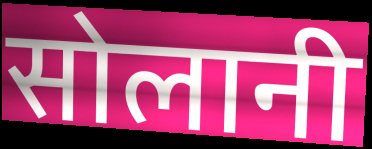
सोलानी